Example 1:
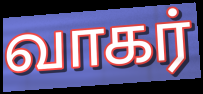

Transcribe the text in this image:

வாகர்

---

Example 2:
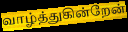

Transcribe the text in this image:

வாழ்த்துகின்றேன்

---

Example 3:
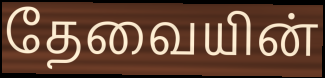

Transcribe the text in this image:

தேவையின்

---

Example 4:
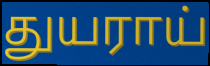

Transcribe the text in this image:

துயராய்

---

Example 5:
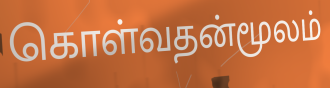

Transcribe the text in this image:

கொள்வதன்மூலம்